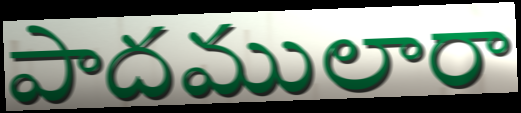
పాదములారా